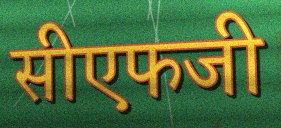
सीएफजी